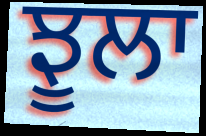
ਝੂਲਾ